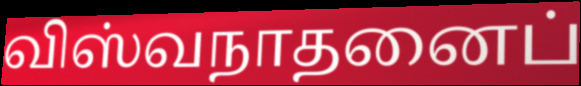
விஸ்வநாதனைப்